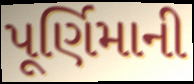
પૂર્ણિમાની